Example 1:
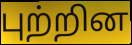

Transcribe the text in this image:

புற்றின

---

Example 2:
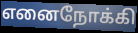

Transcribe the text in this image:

எனைநோக்கி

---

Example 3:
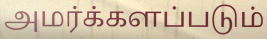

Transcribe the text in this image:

அமர்க்களப்படும்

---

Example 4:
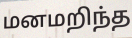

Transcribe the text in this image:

மனமறிந்த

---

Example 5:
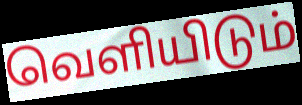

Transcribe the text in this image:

வெளியிடும்